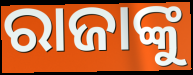
ରାଜାଙ୍କୁ